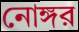
নোঙ্গর